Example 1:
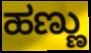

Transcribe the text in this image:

ಹಣ್ಣು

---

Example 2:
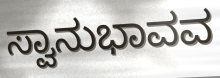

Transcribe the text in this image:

ಸ್ವಾನುಭಾವವ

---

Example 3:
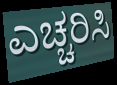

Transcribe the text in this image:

ಎಚ್ಚರಿಸಿ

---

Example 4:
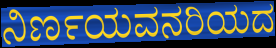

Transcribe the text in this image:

ನಿರ್ಣಯವನರಿಯದ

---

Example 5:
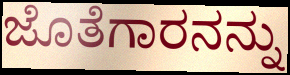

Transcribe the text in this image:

ಜೊತೆಗಾರನನ್ನು